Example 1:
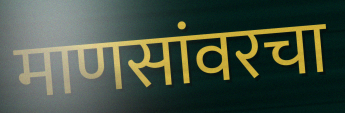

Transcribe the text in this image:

माणसांवरचा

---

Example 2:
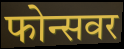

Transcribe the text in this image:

फोन्सवर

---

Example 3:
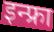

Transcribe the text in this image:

इन्फ्रा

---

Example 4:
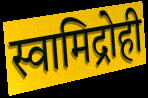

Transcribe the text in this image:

स्वामिद्रोही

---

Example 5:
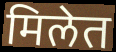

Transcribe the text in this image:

मिलेत